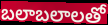
బలాబలాలతో